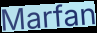
Marfan